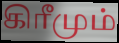
கிரீமும்